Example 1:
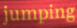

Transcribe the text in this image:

jumping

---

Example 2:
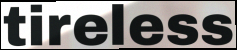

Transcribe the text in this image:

tireless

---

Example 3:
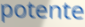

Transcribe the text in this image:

potente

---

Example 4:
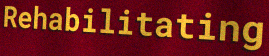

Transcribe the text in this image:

Rehabilitating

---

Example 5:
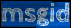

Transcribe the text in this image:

msgid